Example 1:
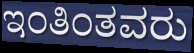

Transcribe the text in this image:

ಇಂತಿಂತವರು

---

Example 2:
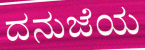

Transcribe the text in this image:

ದನುಜೆಯ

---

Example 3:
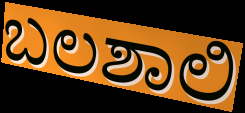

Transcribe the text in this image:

ಬಲಶಾಲಿ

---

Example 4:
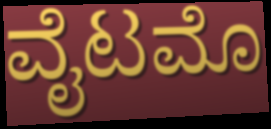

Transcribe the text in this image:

ವೈಟಮೊ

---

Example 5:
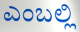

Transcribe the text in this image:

ಎಂಬಲ್ಲಿ